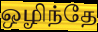
ஒழிந்தே